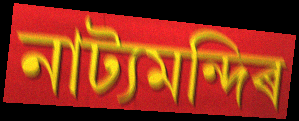
নাট্যমন্দিৰ